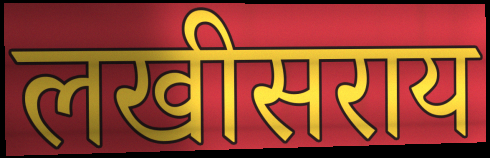
लखीसराय